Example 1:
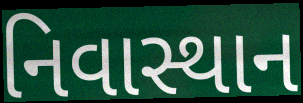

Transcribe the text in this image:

નિવાસ્થાન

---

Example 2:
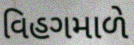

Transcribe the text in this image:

વિહગમાળે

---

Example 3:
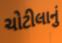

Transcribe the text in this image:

ચોટીલાનું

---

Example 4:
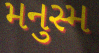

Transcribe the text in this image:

મનુસ્મ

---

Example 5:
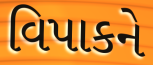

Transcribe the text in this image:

વિપાકને